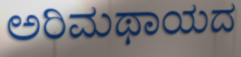
ಅರಿಮಥಾಯದ